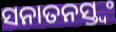
ସନାତନସ୍ତ୍ୱଂ